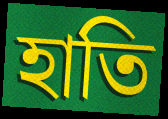
হাতি